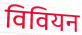
विवियन